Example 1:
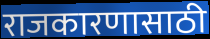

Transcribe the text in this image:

राजकारणासाठी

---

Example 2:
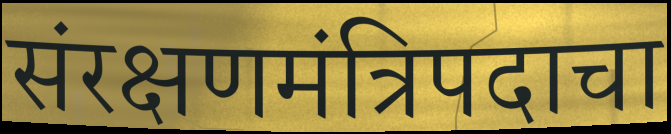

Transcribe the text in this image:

संरक्षणमंत्रिपदाचा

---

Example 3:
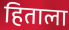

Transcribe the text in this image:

हिताला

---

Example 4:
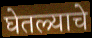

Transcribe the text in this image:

घेतल्याचे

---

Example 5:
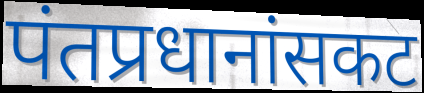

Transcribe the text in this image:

पंतप्रधानांसकट